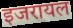
इजरायल